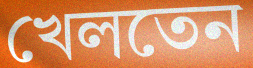
খেলতেন